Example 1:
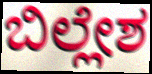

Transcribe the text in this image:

ಬಿಲ್ಲೇಶ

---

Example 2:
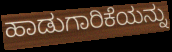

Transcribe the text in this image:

ಹಾಡುಗಾರಿಕೆಯನ್ನು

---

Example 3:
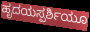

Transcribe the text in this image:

ಹೃದಯಸ್ಪರ್ಶಿಯೂ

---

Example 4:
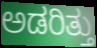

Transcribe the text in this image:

ಅಡರಿತ್ತು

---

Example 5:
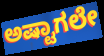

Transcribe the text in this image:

ಅಷ್ಟಾಗಲೇ